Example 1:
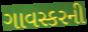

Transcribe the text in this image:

ગાવસ્કરની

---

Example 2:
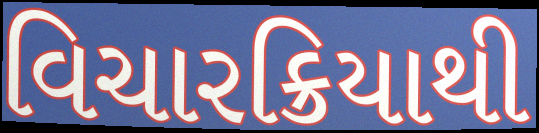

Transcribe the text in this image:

વિચારક્રિયાથી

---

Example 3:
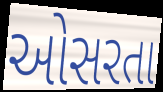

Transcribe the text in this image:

ઓસરતા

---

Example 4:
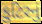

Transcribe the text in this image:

કુટિરનું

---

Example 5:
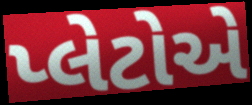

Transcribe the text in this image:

પ્લેટોએ